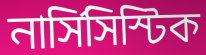
নার্সিসিস্টিক